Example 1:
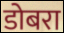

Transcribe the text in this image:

डोबरा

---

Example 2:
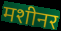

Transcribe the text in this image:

मशीनर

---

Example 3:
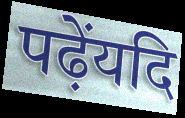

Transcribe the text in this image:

पढ़ेंयदि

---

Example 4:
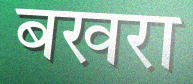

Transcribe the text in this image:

बखरा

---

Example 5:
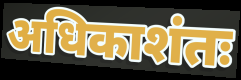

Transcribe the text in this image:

अधिकाशंतः